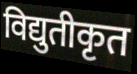
विद्युतीकृत